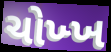
ચોખ્ખ